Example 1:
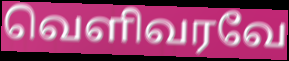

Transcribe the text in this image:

வெளிவரவே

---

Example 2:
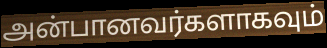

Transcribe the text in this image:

அன்பானவர்களாகவும்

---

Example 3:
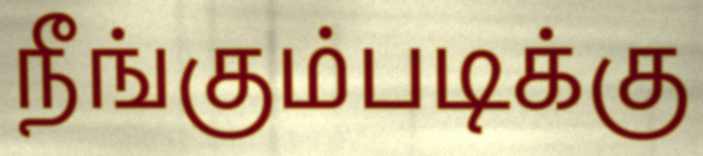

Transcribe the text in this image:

நீங்கும்படிக்கு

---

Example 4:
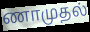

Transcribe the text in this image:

ணாமுதல்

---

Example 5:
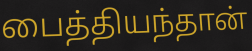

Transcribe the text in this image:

பைத்தியந்தான்